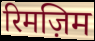
रिमज़िम